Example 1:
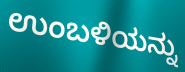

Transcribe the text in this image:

ಉಂಬಳಿಯನ್ನು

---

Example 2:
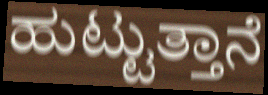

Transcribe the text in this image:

ಹುಟ್ಟುತ್ತಾನೆ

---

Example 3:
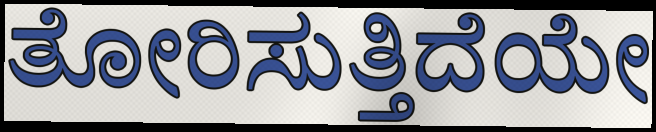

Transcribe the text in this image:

ತೋರಿಸುತ್ತಿದೆಯೇ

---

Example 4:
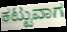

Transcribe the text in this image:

ಕಟ್ಟುವಾಗ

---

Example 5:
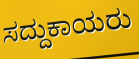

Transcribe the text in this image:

ಸದ್ದುಕಾಯರು